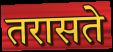
तरासते